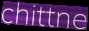
chittne